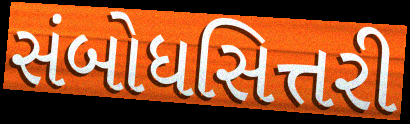
સંબોધસિત્તરી